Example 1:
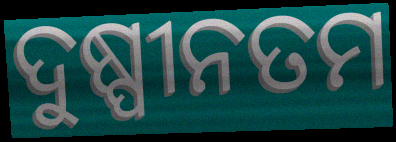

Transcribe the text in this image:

ଦୁଷ୍ପୀନତମ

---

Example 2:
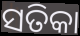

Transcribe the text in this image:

ସତିକା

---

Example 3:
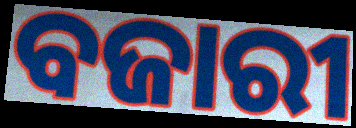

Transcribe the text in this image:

ବଜାରୀ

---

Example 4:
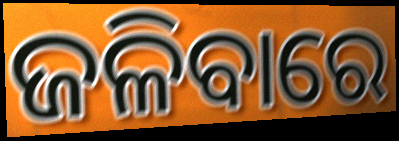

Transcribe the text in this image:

ଜଳିବାରେ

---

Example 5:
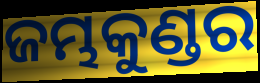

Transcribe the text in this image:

ଜମ୍ଭକୁଣ୍ଡର